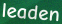
leaden